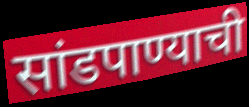
सांडपाण्याची